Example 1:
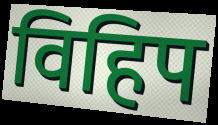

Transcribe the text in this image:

विहिप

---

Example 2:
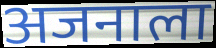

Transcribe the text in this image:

अजनाला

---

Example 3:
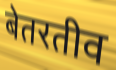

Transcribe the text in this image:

बेतरतीव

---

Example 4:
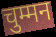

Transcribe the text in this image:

चुम्मन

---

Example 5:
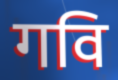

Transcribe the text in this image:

गवि